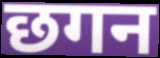
छगन